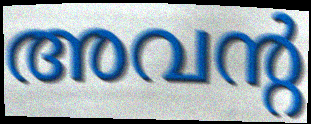
അവന്റ